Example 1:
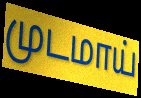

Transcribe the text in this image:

முடமாய்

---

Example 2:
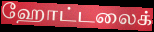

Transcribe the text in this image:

ஹோட்டலைக்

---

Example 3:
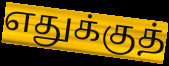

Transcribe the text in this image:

எதுக்குத்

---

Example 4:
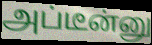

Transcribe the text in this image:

அப்டீன்னு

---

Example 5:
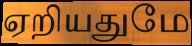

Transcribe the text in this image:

ஏறியதுமே